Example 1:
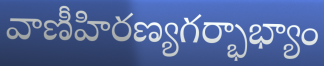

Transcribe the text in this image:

వాణీహిరణ్యగర్భాభ్యాం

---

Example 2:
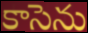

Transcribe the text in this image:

కాసెను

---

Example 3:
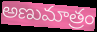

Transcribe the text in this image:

అణుమాత్రం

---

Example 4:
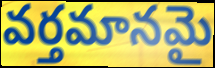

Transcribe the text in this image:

వర్తమానమై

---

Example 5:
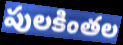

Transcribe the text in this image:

పులకింతల